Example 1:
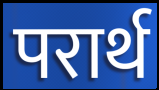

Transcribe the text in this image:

परार्थ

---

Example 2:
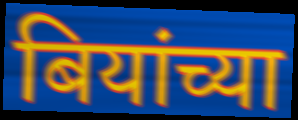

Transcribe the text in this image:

बियांच्या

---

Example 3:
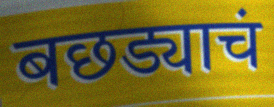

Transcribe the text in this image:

बछड्याचं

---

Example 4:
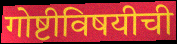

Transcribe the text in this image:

गोष्टीविषयीची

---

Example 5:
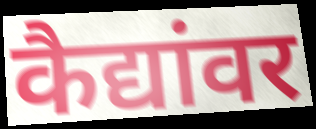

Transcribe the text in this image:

कैद्यांवर